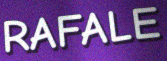
RAFALE